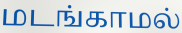
மடங்காமல்